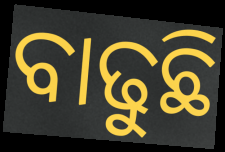
ବାଢୁଛି